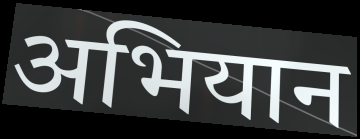
अभियान